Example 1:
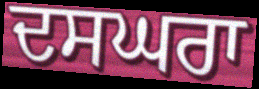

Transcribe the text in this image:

ਦਸਘਰਾ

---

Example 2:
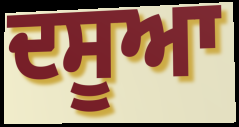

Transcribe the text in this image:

ਦਸੂਆ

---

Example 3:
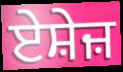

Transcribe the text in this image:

ਏਸ਼ੇਜ਼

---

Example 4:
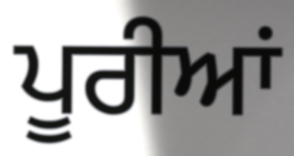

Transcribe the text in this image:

ਪੂਰੀਆਂ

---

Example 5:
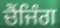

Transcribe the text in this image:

ਚੈਂਜਿੰਗ